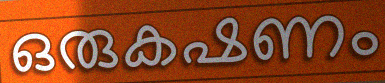
ഒരുകഷണം